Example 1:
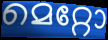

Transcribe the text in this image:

മെറ്റോ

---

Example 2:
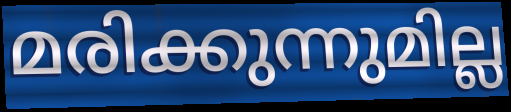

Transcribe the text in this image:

മരിക്കുന്നുമില്ല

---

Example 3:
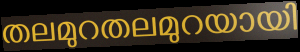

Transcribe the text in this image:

തലമുറതലമുറയായി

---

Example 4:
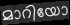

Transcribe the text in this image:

മാറിയോ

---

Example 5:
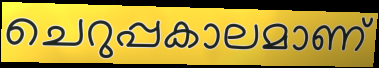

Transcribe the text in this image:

ചെറുപ്പകാലമാണ്